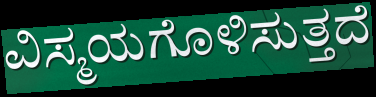
ವಿಸ್ಮಯಗೊಳಿಸುತ್ತದೆ